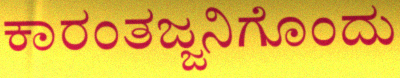
ಕಾರಂತಜ್ಜನಿಗೊಂದು